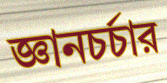
জ্ঞানচর্চার